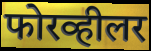
फोरव्हीलर